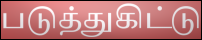
படுத்துகிட்டு